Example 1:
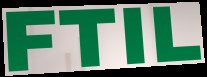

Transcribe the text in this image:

FTIL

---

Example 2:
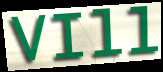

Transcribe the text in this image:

VIll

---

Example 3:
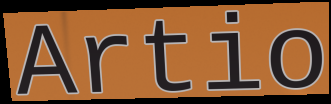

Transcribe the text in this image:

Artio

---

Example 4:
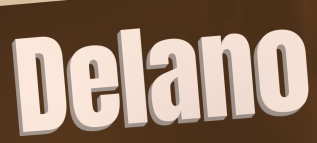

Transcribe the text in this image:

Delano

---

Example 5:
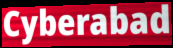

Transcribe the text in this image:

Cyberabad